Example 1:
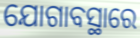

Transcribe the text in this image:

ଯୋଗାବସ୍ଥାରେ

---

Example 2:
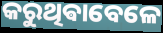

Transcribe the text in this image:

କରୁଥିଵାବେଳେ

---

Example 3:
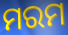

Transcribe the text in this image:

ମରମ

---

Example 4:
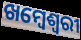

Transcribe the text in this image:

ଖମ୍ବେଶ୍ଵରୀ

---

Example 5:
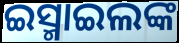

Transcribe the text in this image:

ଇସ୍ମାଇଲଙ୍କ